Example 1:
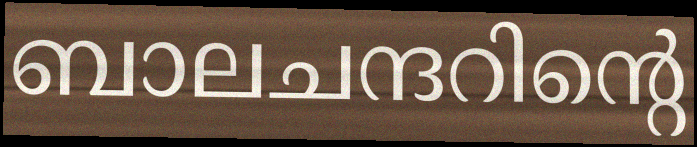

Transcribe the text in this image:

ബാലചന്ദറിന്റെ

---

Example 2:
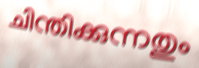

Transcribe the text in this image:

ചിന്തിക്കുന്നതും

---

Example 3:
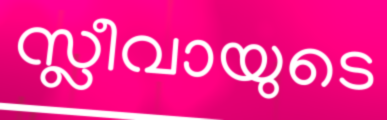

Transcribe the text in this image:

സ്ലീവായുടെ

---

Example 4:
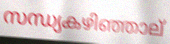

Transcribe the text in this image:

സന്ധ്യകഴിഞ്ഞാല്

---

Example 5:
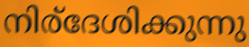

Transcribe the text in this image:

നിര്ദേശിക്കുന്നു